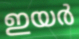
ഇയർ